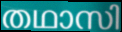
തഥാസി